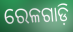
ରେଳଗାଡ଼ି